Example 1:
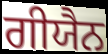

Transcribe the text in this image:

ਗੀਯੈਨ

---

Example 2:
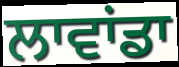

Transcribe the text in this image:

ਲਾਵਾਂਡਾ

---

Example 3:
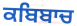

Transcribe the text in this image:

ਕਬਿਬਾਚ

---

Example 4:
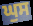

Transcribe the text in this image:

ਘੁਸ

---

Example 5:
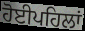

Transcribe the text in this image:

ਹੋਈਪਹਿਲਾਂ